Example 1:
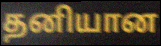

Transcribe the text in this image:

தனியான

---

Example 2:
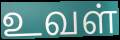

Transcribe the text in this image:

உவள்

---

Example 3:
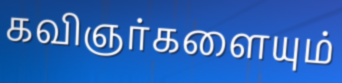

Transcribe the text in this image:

கவிஞர்களையும்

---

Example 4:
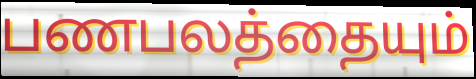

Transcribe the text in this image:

பணபலத்தையும்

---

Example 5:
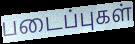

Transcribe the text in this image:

படைப்புகள்